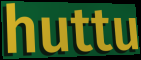
huttu